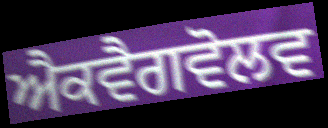
ਐਕਵੈਗਵੋਲਵ